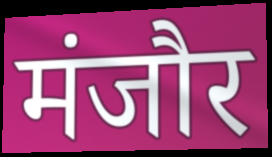
मंजौर